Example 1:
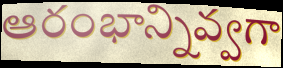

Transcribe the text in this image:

ఆరంభాన్నివ్వగా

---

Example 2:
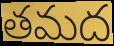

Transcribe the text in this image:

తమద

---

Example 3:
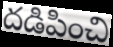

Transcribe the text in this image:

దడిపించి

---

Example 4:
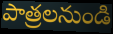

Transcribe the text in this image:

పాత్రలనుండి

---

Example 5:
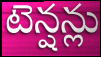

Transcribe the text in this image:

టెన్షన్లు